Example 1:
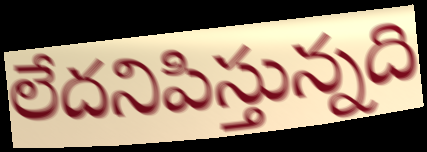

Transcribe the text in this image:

లేదనిపిస్తున్నది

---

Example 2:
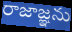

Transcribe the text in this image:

రాజాజ్ఞను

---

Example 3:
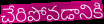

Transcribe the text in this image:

చేరిపోవడానికి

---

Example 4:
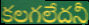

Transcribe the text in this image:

కలగలేదనీ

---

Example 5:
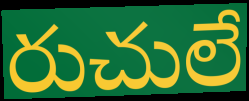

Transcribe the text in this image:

రుచులే